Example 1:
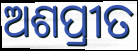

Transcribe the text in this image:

ଅଶପ୍ରୀତ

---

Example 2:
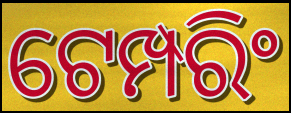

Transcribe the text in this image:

ଟେମ୍ପରିଂ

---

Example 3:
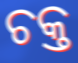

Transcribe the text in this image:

ଚକ୍ତ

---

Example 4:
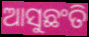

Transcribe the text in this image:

ଆସୁଛଂତି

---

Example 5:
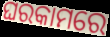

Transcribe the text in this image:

ଘରକାମରେ